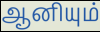
ஆனியும்